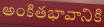
అంకితభావానికి